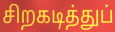
சிறகடித்துப்